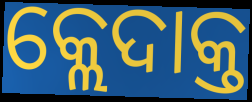
କ୍ଲେଦାକ୍ତ